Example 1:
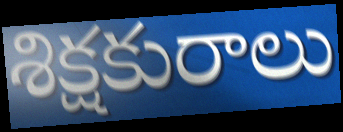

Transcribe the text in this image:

శిక్షకురాలు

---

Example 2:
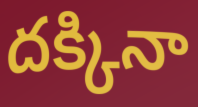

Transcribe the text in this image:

దక్కినా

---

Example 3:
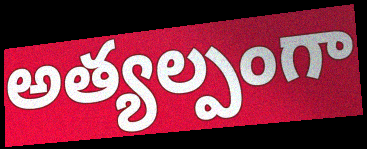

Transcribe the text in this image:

అత్యల్పంగా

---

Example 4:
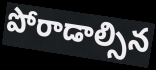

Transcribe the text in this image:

పోరాడాల్సిన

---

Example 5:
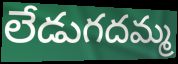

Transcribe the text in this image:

లేడుగదమ్మ